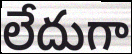
లేదుగా